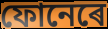
ফোনেৰে